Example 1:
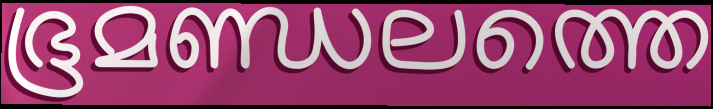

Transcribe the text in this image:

ഭൂമണ്ഡലത്തെ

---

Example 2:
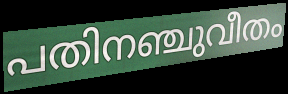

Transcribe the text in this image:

പതിനഞ്ചുവീതം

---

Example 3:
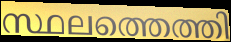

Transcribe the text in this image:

സ്ഥലത്തെത്തി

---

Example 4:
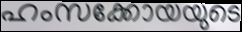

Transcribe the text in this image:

ഹംസക്കോയയുടെ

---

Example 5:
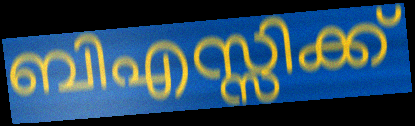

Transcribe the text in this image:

ബിഎസ്സിക്ക്